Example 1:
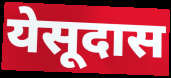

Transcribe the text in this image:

येसूदास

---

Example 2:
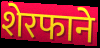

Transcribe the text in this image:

शेरफाने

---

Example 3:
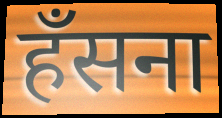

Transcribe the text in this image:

हँसना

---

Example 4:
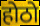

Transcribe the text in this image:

होठो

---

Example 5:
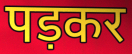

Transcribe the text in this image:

पड़कर